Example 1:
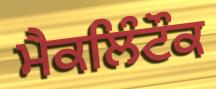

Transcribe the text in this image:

ਮੈਕਲਿੰਟੌਕ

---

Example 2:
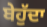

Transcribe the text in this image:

ਬੇਹੁੱਦਾ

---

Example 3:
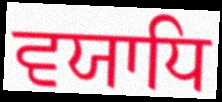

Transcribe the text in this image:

ਵਯਾਧਿ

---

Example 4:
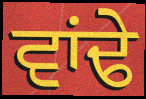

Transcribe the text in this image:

ਵਾਂਢੇ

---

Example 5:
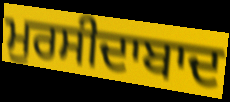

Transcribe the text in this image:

ਮੁਰਸੀਦਾਬਾਦ